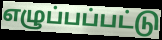
எழுப்பப்பட்டு